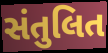
સંતુલિત